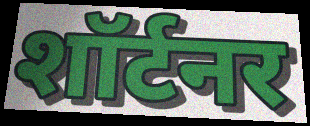
शॉर्टनर